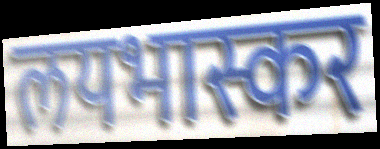
लयभास्कर